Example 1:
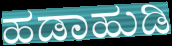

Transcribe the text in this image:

ಹಡಾಹುಡಿ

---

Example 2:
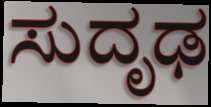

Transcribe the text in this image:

ಸುದೃಢ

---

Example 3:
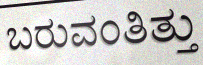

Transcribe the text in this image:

ಬರುವಂತಿತ್ತು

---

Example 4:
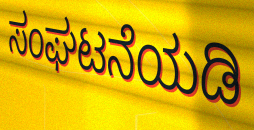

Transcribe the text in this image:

ಸಂಘಟನೆಯಡಿ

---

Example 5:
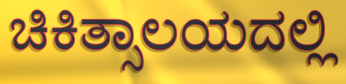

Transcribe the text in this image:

ಚಿಕಿತ್ಸಾಲಯದಲ್ಲಿ